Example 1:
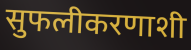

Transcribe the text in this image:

सुफलीकरणाशी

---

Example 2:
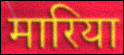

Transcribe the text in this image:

मारिया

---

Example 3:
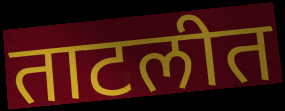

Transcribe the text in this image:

ताटलीत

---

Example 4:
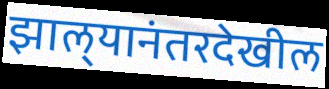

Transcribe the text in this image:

झाल्यानंतरदेखील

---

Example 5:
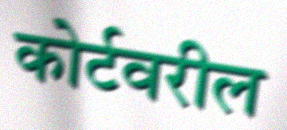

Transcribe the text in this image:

कोर्टवरील